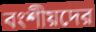
বংশীয়দের